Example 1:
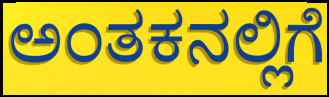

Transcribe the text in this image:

ಅಂತಕನಲ್ಲಿಗೆ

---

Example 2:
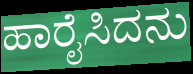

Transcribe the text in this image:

ಹಾರೈಸಿದನು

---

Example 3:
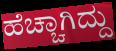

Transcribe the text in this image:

ಹೆಚ್ಚಾಗಿದ್ದು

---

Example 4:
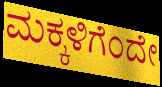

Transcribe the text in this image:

ಮಕ್ಕಳಿಗೆಂದೇ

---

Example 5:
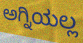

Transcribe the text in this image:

ಅಗ್ನಿಯಲ್ಲ